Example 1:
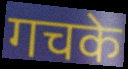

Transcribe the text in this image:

गचके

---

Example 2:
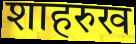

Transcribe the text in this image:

शाहरुख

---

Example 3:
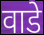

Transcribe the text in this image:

वाडे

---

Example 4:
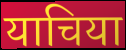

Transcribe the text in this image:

याचिया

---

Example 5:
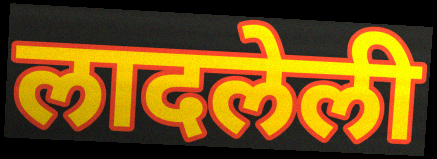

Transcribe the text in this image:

लादलेली